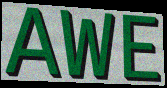
AWE